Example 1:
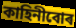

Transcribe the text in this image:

কাহিনীবোৰ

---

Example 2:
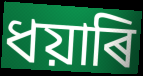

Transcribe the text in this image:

ধয়াৰি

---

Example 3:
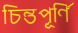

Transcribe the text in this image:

চিন্তপূৰ্ণি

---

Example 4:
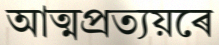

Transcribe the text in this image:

আত্মপ্ৰত্যয়ৰে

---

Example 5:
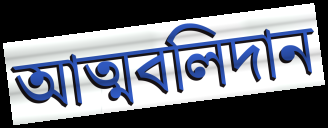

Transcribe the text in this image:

আত্মবলিদান